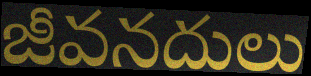
జీవనదులు